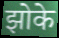
झोके